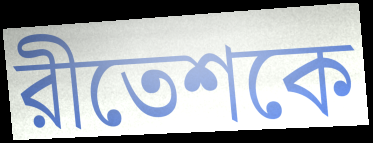
রীতেশকে